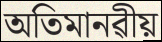
অতিমানৱীয়